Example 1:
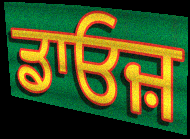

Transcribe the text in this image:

ਡਾਓਜ਼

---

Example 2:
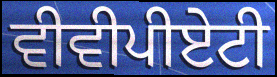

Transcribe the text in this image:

ਵੀਵੀਪੀਏਟੀ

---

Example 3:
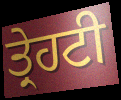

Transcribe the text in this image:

ਤ੍ਰੇਹਟੀ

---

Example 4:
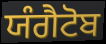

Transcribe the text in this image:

ਯੰਗੈਟੋਬ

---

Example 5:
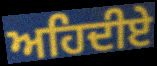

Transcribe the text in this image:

ਅਹਿਦੀਏ